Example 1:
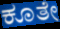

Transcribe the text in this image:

ಕೂತೇ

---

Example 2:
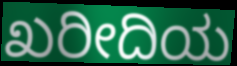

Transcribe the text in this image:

ಖರೀದಿಯ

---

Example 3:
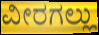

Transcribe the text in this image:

ವೀರಗಲ್ಲು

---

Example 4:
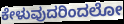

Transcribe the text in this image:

ಕೇಳುವುದರಿಂದಲೋ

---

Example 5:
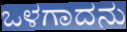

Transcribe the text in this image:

ಒಳಗಾದನು